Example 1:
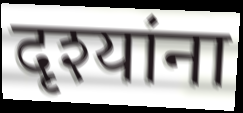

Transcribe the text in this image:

दृश्यांना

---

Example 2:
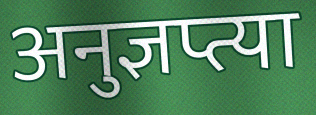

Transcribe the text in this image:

अनुज्ञप्त्या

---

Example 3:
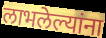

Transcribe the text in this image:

लाभलेल्यांना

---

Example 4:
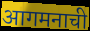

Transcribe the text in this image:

आगमनाची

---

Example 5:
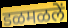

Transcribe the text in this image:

डळमळलें